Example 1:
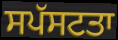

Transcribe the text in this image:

ਸਪੱਸਟਤਾ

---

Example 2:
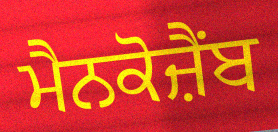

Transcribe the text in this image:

ਮੈਨਕੋਜ਼ੈਂਬ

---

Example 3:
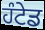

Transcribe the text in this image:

ਹੰਟੇਡ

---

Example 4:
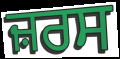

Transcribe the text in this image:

ਜ਼ਰਸ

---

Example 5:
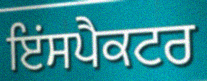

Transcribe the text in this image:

ਇਂਸਪੈਕਟਰ